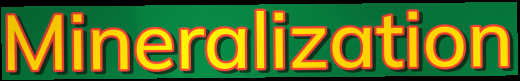
Mineralization